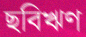
ছবিঋণ